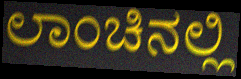
ಲಾಂಚಿನಲ್ಲಿ